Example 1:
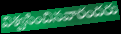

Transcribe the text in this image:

విశ్వసించినవారందరు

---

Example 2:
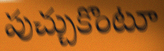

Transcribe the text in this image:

పుచ్చుకొంటూ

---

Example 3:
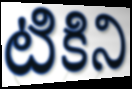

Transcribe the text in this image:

టికిని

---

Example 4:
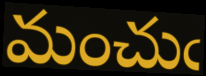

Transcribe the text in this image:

మంచుఁ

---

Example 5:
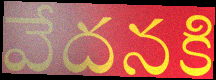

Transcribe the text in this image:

వేదనకి